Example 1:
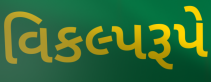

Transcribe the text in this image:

વિકલ્પરૂપે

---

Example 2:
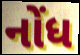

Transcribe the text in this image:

નોંધ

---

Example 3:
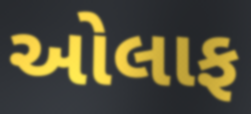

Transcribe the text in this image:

ઓલાફ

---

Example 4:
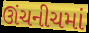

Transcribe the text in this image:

ઊંચનીચમાં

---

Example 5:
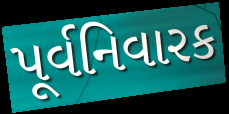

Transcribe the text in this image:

પૂર્વનિવારક